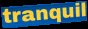
tranquil